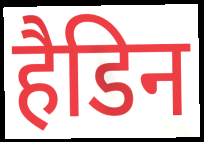
हैडिन